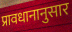
प्रावधानानुसार